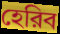
হেরিব